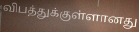
விபத்துக்குள்ளானது